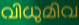
വിധുമിവ